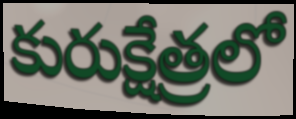
కురుక్షేత్రలో